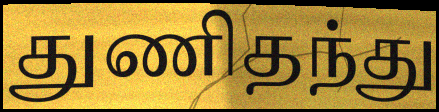
துணிதந்து